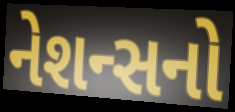
નેશન્સનો